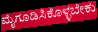
ಮೈಗೂಡಿಸಿಕೊಳ್ಳಬೇಕು